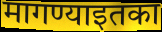
मागण्याइतका